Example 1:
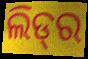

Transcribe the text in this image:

ଲିଡ୍‌ର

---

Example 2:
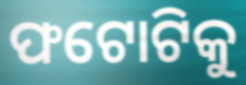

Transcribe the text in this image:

ଫଟୋଟିକୁ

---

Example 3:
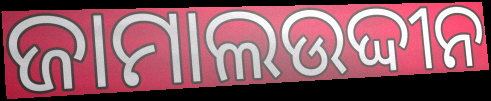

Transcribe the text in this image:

ଜାମାଲଉଦ୍ଦୀନ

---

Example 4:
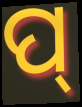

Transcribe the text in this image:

ପ୍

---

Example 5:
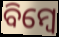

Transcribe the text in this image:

ବିମ୍ବେ